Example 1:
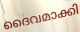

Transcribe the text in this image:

ദൈവമാക്കി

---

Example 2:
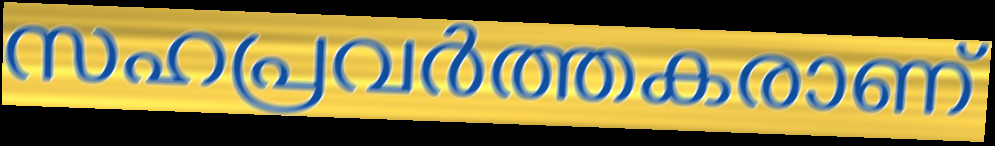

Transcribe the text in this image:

സഹപ്രവർത്തകരാണ്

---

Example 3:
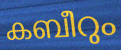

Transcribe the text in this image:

കബീറും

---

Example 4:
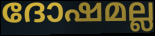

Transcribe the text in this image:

ദോഷമല്ല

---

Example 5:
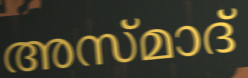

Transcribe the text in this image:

അസ്മാദ്